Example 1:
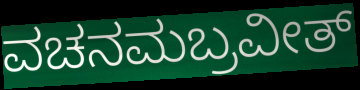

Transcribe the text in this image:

ವಚನಮಬ್ರವೀತ್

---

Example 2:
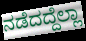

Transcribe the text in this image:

ನಡೆದದ್ದೆಲ್ಲಾ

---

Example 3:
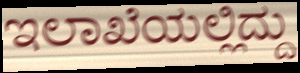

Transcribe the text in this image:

ಇಲಾಖೆಯಲ್ಲಿದ್ದು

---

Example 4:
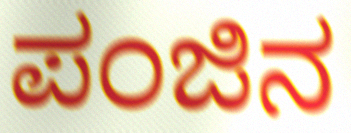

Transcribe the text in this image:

ಪಂಜಿನ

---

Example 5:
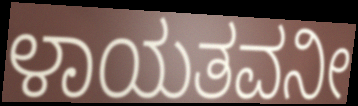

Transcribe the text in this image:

ಳಾಯತವನೀ